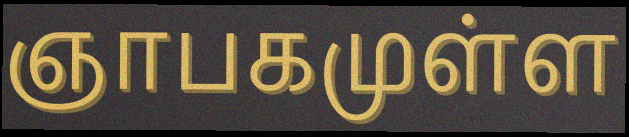
ஞாபகமுள்ள